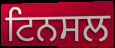
ਟਿਨਸਲ